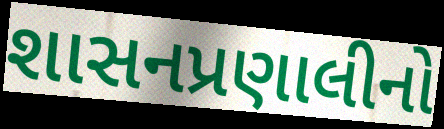
શાસનપ્રણાલીનો